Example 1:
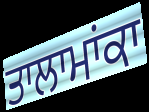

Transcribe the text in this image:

ਤਾਲਾਮਾਂਕਾ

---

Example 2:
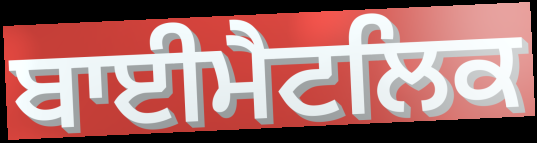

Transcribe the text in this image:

ਬਾਈਮੈਟਲਿਕ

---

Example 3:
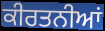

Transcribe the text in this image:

ਕੀਰਤਨੀਆਂ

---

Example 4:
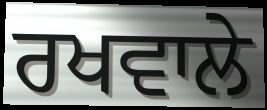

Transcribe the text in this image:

ਰਖਵਾਲੇ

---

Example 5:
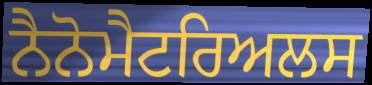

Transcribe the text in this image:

ਨੈਨੋਮੈਟਰਿਅਲਸ